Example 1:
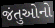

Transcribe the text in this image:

જંતુઓનો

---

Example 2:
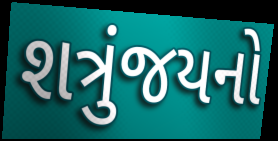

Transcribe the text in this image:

શત્રુંજયનો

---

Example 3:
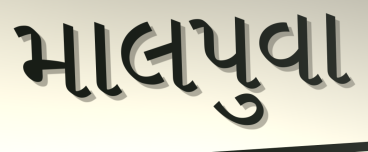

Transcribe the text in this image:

માલપુવા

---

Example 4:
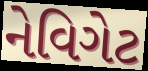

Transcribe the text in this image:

નેવિગેટ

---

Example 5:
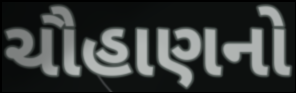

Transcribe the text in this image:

ચૌહાણનો